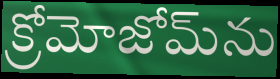
క్రోమోజోమ్‌ను